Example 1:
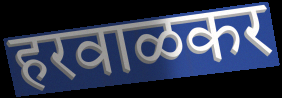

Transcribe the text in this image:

हरवाळकर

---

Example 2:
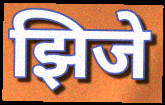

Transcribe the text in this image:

झिजे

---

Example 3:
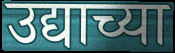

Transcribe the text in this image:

उद्याच्या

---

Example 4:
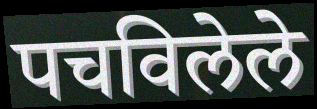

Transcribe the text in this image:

पचविलेले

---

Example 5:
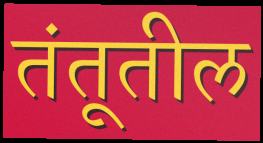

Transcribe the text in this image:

तंतूतील